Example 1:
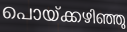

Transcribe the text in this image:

പൊയ്‌ക്കഴിഞ്ഞു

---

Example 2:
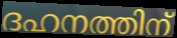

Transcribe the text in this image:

ദഹനത്തിന്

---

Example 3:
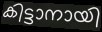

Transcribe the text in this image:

കിട്ടാനായി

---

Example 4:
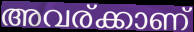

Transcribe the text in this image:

അവര്ക്കാണ്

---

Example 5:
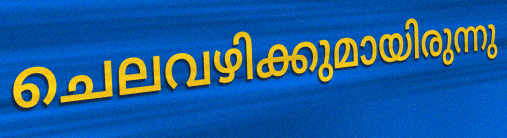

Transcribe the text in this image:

ചെലവഴിക്കുമായിരുന്നു